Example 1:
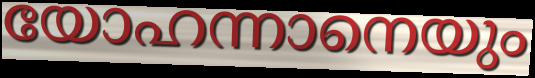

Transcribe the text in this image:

യോഹന്നാനെയും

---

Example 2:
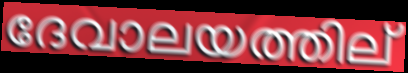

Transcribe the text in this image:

ദേവാലയത്തില്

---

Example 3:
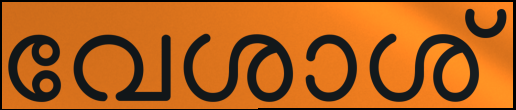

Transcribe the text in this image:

വേശാശ്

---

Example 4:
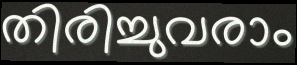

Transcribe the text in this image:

തിരിച്ചുവരാം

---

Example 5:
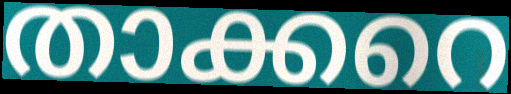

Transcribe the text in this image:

താക്കറെ